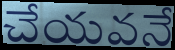
చేయవనే